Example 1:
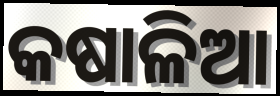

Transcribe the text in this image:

କଷାଳିଆ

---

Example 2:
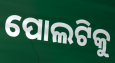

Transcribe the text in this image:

ପୋଲଟିକୁ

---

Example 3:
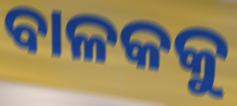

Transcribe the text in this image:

ବାଳକକୁ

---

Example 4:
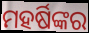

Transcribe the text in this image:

ମହର୍ଷିଙ୍କର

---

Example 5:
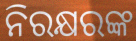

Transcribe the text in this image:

ନିରକ୍ଷରଙ୍କ